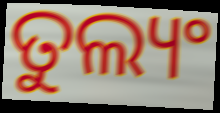
ତୁଲ୍ୟଂ